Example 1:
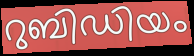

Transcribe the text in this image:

റുബിഡിയം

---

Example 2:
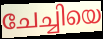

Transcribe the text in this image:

ചേച്ചിയെ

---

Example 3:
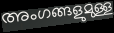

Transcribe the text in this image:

അംഗങ്ങളുമുള്ള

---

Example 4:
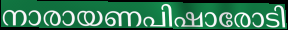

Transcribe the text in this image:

നാരായണപിഷാരോടി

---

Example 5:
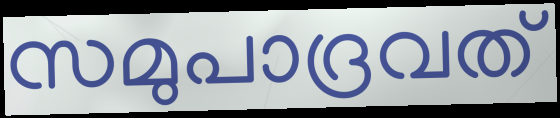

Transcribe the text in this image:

സമുപാദ്രവത്